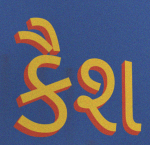
કૈશ